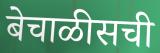
बेचाळीसची